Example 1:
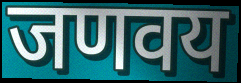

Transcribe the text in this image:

जणवय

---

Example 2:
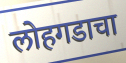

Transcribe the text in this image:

लोहगडाचा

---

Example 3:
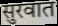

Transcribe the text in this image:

सुरवात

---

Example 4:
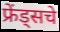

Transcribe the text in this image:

फ्रेंड्सचे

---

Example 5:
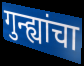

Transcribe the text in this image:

गुन्ह्यांचा